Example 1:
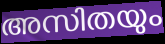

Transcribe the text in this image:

അസിതയും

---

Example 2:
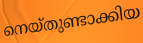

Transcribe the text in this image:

നെയ്തുണ്ടാക്കിയ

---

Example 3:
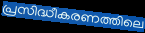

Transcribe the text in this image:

പ്രസിദ്ധീകരണത്തിലെ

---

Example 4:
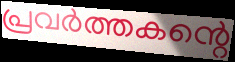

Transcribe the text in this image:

പ്രവർത്തകന്റെ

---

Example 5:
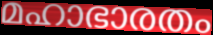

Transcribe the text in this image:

മഹാഭാരതം